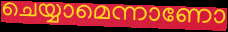
ചെയ്യാമെന്നാണോ